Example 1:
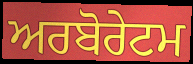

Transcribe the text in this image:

ਅਰਬੋਰੇਟਮ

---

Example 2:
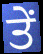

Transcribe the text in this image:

ਤੇੰ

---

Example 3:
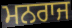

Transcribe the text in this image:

ਮਨਰਾਜ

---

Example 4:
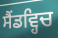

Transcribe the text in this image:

ਸੈਂਡਵ੍ਹਿਚ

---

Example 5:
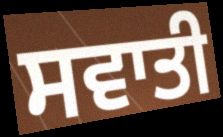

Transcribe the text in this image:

ਸਵਾਤੀ